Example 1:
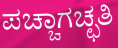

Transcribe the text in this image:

ಪಚ್ಚಾಗಚ್ಛತಿ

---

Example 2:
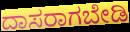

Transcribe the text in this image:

ದಾಸರಾಗಬೇಡಿ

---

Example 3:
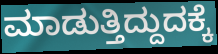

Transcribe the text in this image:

ಮಾಡುತ್ತಿದ್ದುದಕ್ಕೆ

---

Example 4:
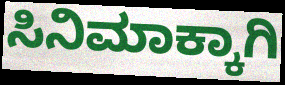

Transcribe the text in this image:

ಸಿನಿಮಾಕ್ಕಾಗಿ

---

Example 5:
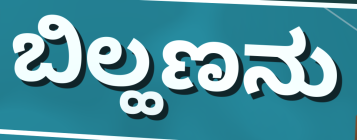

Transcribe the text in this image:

ಬಿಲ್ಹಣನು